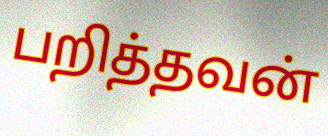
பறித்தவன்